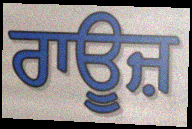
ਰਾਊਜ਼